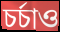
চৰ্চাও